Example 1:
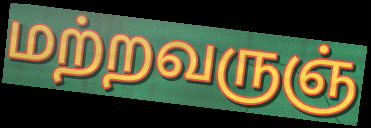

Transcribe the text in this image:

மற்றவருஞ்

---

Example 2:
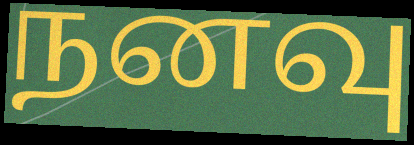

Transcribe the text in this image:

நனவு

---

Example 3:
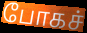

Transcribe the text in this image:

போகச்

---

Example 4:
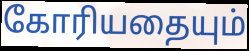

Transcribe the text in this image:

கோரியதையும்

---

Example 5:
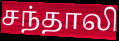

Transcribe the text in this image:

சந்தாலி